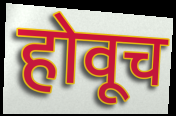
होवूच